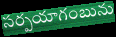
సర్పయాగంబును